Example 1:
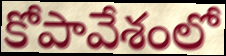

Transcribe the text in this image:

కోపావేశంలో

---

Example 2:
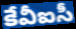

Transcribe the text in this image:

కేవీఐసీ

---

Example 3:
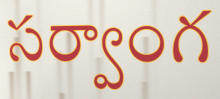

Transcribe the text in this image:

సర్వాంగ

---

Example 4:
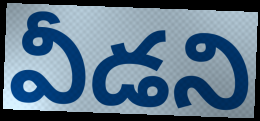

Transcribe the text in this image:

వీడని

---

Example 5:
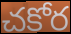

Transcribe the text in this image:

చకోర